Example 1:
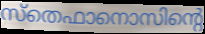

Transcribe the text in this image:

സ്തെഫാനൊസിന്റെ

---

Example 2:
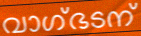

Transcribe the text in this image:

വാഗ്ഭടന്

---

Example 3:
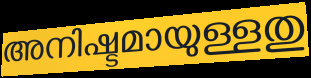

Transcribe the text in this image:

അനിഷ്ടമായുള്ളതു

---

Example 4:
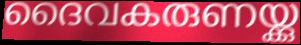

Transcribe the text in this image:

ദൈവകരുണയ്ക്കു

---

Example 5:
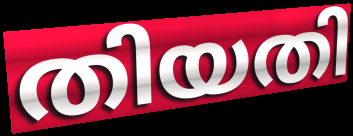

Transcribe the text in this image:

തിയതി